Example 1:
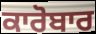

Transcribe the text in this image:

ਕਾਰੋਬਾਰ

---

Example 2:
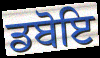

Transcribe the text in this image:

ਡਬੋਇ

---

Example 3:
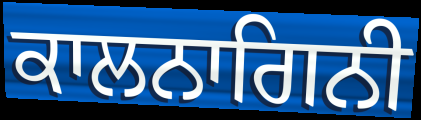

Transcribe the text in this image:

ਕਾਲਨਾਗਿਨੀ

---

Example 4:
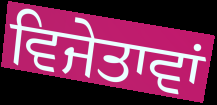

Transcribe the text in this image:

ਵਿਜੇਤਾਵਾਂ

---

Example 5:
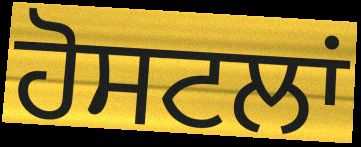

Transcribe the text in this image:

ਹੋਸਟਲਾਂ